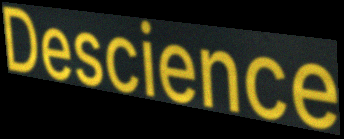
Descience